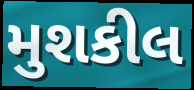
મુશકીલ